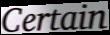
Certain